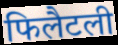
फिलैटली